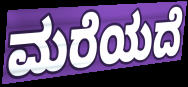
ಮರೆಯದೆ